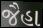
જૈહા